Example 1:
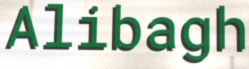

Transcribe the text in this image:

Alibagh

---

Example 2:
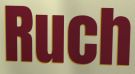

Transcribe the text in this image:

Ruch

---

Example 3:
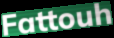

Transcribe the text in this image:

Fattouh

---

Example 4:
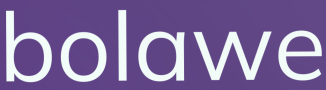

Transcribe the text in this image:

bolawe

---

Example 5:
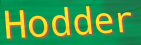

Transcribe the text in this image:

Hodder